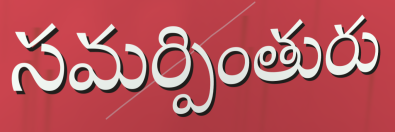
సమర్పింతురు